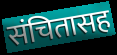
संचितासह